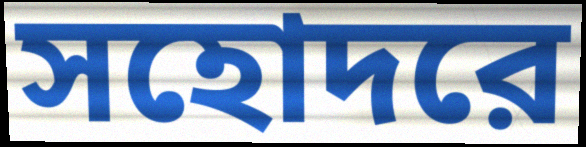
সহোদরে